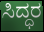
ಸಿದ್ಧರ